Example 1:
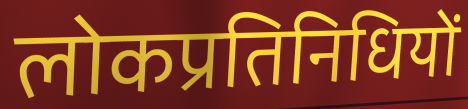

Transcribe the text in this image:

लोकप्रतिनिधियों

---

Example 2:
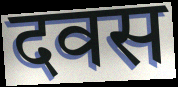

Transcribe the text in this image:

दवस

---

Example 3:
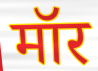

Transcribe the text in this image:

मॉर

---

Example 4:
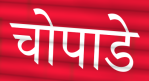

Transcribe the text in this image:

चोपाडे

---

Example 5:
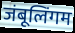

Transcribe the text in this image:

जंबूलिंगम